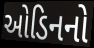
ઓડિનનો